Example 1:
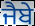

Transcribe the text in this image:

ਜੈਬੇ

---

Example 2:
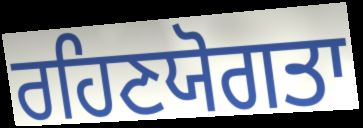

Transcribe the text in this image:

ਰਹਿਣਯੋਗਤਾ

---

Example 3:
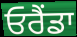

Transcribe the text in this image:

ਓਰੈਂਡਾ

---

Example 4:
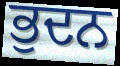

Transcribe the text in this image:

ਭੁਦਨ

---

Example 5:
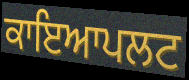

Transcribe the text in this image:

ਕਾਇਆਪਲਟ